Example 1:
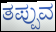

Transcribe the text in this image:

ತಪ್ಪುವ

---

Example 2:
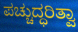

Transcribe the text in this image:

ಪಚ್ಚುದ್ಧರಿತ್ವಾ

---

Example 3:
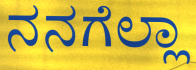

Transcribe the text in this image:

ನನಗೆಲ್ಲಾ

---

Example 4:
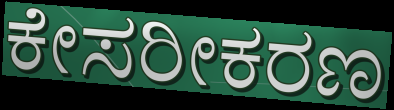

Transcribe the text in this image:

ಕೇಸರೀಕರಣ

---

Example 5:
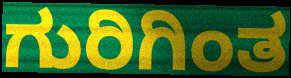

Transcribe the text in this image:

ಗುರಿಗಿಂತ